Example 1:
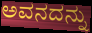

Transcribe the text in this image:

ಅವನದನ್ನು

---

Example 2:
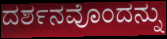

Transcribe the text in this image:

ದರ್ಶನವೊಂದನ್ನು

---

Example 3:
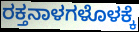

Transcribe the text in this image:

ರಕ್ತನಾಳಗಳೊಳಕ್ಕೆ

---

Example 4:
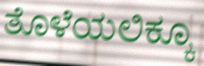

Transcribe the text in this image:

ತೊಳೆಯಲಿಕ್ಕೂ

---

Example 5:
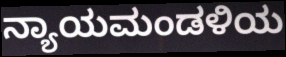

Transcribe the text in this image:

ನ್ಯಾಯಮಂಡಳಿಯ